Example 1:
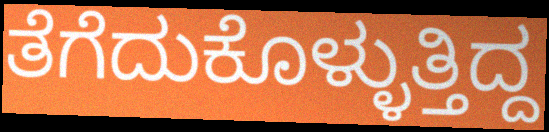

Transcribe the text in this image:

ತೆಗೆದುಕೊಳ್ಳುತ್ತಿದ್ದ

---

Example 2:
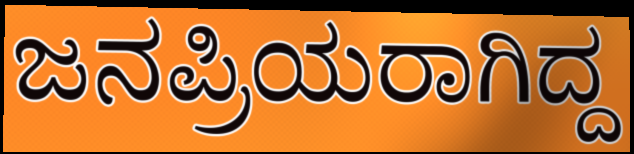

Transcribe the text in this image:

ಜನಪ್ರಿಯರಾಗಿದ್ದ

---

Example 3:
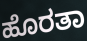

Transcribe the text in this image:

ಹೊರತಾ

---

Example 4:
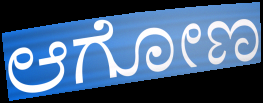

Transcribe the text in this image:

ಆಗೋಣ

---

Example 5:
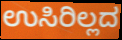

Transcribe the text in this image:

ಉಸಿರಿಲ್ಲದ